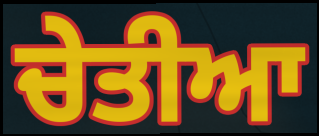
ਚੇਤੀਆ